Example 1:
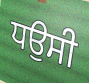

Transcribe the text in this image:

ਧਉਸੀ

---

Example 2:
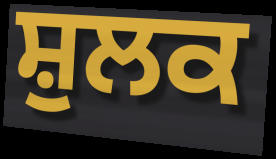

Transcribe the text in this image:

ਸ਼ੁਲਕ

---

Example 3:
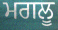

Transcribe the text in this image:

ਮਗਲੂ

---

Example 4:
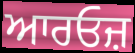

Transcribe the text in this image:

ਆਰਓਜ਼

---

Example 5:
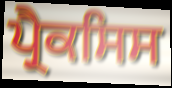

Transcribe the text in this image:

ਪ੍ਰੈਕਸਿਸ